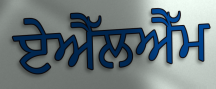
ਏਐੱਲਐੱਮ